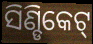
ସିଣ୍ଡିକେଟ୍